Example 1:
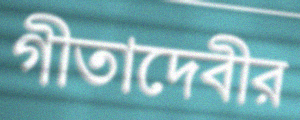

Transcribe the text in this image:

গীতাদেবীর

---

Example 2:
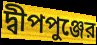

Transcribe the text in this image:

দ্বীপপুঞ্জের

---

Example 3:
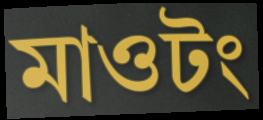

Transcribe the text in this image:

মাওটং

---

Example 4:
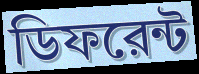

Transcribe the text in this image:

ডিফরেন্ট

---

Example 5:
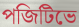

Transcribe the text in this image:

পজিটিভে